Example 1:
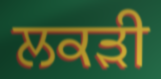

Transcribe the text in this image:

ਲਕੜੀ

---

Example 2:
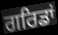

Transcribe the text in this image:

ਗਰਿਡਾਂ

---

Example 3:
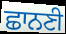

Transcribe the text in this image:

ਛਾਨਣੀ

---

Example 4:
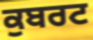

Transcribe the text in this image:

ਕੁਬਰਟ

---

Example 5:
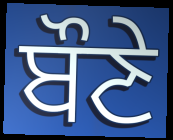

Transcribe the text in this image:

ਬੌਣੇ